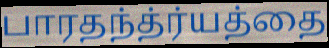
பாரதந்த்ர்யத்தை